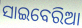
ସାଇବେରିଆ